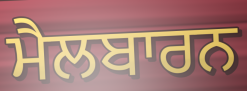
ਮੈਲਬਾਰਨ